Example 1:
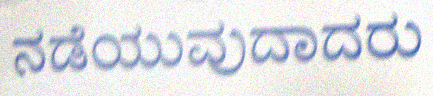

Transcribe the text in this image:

ನಡೆಯುವುದಾದರು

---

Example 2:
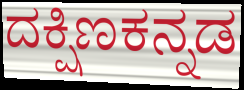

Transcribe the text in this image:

ದಕ್ಷಿಣಕನ್ನಡ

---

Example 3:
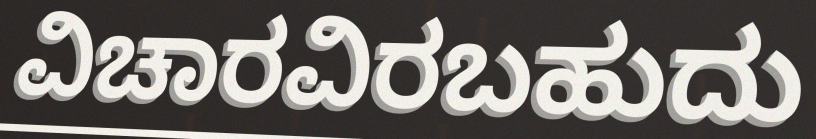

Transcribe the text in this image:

ವಿಚಾರವಿರಬಹುದು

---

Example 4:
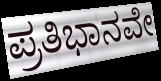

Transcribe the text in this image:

ಪ್ರತಿಭಾನವೇ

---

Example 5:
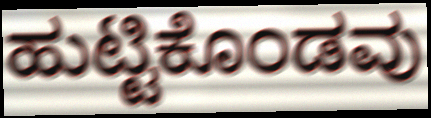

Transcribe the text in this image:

ಹುಟ್ಟಿಕೊಂಡವು